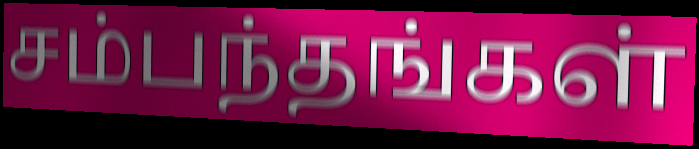
சம்பந்தங்கள்